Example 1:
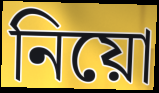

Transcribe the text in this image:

নিয়ো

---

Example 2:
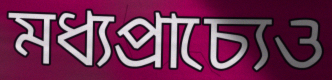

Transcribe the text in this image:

মধ্যপ্রাচ্যেও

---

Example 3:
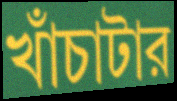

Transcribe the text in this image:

খাঁচাটার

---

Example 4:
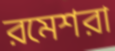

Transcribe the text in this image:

রমেশরা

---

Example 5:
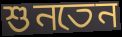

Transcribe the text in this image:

শুনতেন